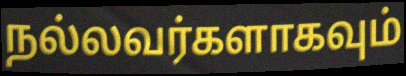
நல்லவர்களாகவும்